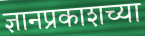
ज्ञानप्रकाशच्या